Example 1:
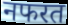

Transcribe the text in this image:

नफरत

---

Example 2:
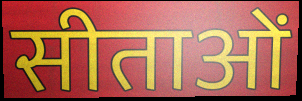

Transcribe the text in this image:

सीताओं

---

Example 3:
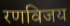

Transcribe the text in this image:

रणविजय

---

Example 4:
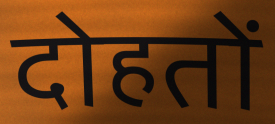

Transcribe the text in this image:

दोहतों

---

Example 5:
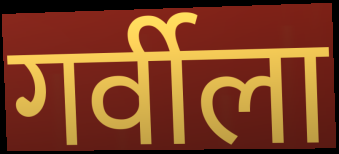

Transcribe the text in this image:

गर्वीला